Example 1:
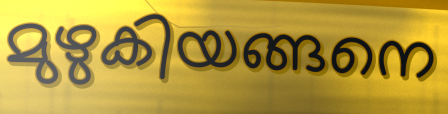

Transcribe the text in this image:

മുഴുകിയങ്ങനെ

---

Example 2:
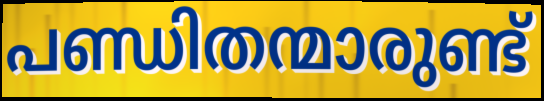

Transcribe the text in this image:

പണ്ഡിതന്മാരുണ്ട്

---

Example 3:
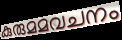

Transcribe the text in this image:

കുരുമമവചനം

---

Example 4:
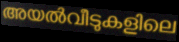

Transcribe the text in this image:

അയൽവീടുകളിലെ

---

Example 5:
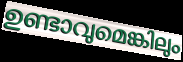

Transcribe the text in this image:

ഉണ്ടാവുമെങ്കിലും